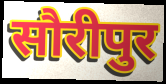
सौरीपुर